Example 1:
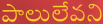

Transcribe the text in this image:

పాలులేవని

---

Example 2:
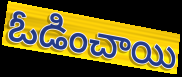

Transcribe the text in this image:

ఓడించాయి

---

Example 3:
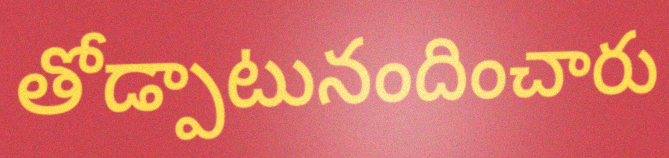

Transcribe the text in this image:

తోడ్పాటునందించారు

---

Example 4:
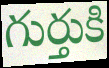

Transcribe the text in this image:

గుర్తుకి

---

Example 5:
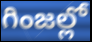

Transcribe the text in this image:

గింజల్లో